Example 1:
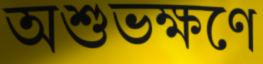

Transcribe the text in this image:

অশুভক্ষণে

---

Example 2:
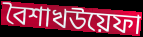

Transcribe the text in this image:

বৈশাখউয়েফা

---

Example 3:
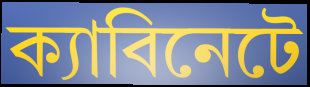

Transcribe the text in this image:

ক্যাবিনেটে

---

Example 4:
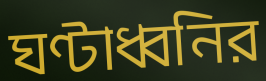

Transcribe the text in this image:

ঘণ্টাধ্বনির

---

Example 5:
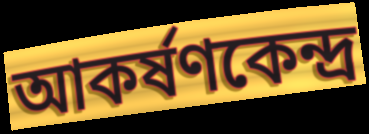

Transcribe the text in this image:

আকর্ষণকেন্দ্র